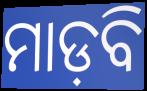
ମାଡ଼ବି